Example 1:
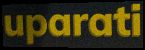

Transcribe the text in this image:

uparati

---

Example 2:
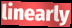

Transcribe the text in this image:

linearly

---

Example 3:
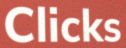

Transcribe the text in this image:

Clicks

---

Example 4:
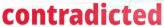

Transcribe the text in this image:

contradicted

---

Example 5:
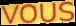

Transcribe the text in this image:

VOUS